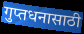
गुप्तधनासाठी